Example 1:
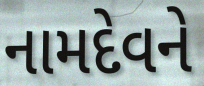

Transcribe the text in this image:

નામદેવને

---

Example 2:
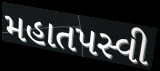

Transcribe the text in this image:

મહાતપસ્વી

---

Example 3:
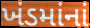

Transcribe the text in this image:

ખંડમાંનાં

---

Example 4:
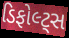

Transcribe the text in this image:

ડિફોલ્ટ્સ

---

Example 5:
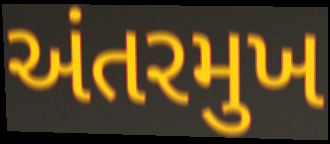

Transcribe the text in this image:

અંતરમુખ